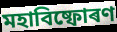
মহাবিষ্ফোৰণ